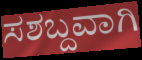
ಸಶಬ್ದವಾಗಿ